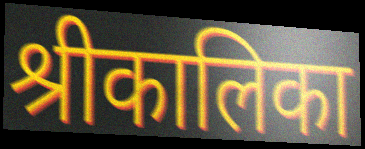
श्रीकालिका